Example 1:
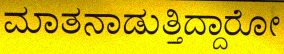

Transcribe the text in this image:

ಮಾತನಾಡುತ್ತಿದ್ದಾರೋ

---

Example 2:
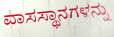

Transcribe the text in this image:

ವಾಸಸ್ಥಾನಗಳನ್ನು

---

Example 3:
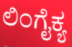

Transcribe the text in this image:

ಲಿಂಗೈಕ್ಯ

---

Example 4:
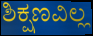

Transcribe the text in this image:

ಶಿಕ್ಷಣವಿಲ್ಲ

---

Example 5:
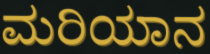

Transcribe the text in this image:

ಮರಿಯಾನ